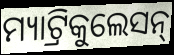
ମ୍ୟାଟ୍ରିକୁଲେସନ୍